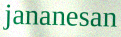
jananesan